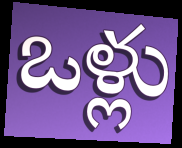
ఒళ్లు